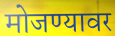
मोजण्यावर